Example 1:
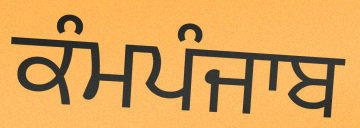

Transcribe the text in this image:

ਕੰਮਪੰਜਾਬ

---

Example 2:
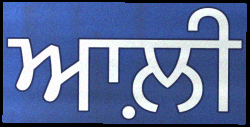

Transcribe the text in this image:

ਆਲ਼ੀ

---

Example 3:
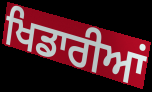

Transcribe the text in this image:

ਖਿਡਾਰੀਆਂ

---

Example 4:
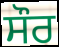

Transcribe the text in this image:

ਸੌਰ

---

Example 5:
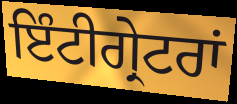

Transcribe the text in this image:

ਇੰਟੀਗ੍ਰੇਟਰਾਂ